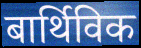
बार्थिविक